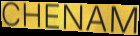
CHENAM